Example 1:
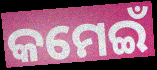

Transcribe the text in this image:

କମେଇଁ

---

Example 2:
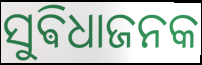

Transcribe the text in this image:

ସୁଵିଧାଜନକ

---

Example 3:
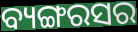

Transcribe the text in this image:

ବ୍ୟଙ୍ଗରସର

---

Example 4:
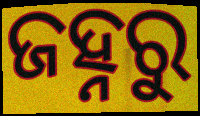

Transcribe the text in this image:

ଜହ୍ନରୁ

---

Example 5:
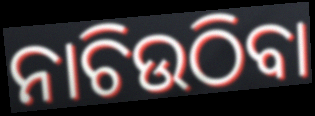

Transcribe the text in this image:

ନାଚିଉଠିବା